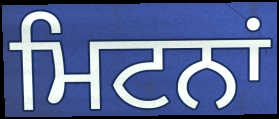
ਮਿਟਨਾਂ